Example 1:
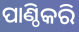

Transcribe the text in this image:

ପାଣ୍ଠିକରି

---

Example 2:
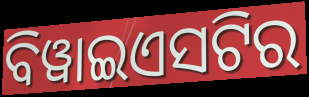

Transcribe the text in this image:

ବିୱାଇଏସଟିର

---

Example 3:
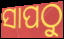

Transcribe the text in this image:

ସାପଠୁ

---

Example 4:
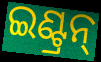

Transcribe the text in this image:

ଇଣ୍ଟ୍ରନ୍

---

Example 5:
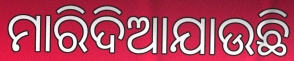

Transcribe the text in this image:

ମାରିଦିଆଯାଉଛି